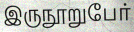
இருநூறுபேர்